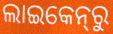
ଲାଇକେନ୍‌ରୁ